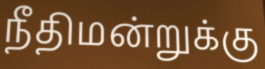
நீதிமன்றுக்கு